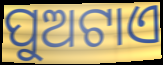
ପୁଅଟାଏ